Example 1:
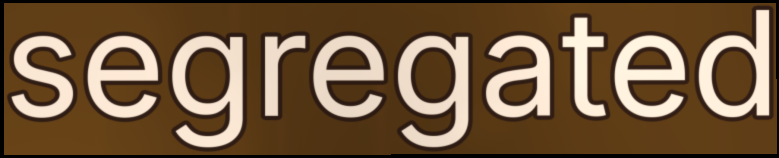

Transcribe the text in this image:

segregated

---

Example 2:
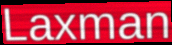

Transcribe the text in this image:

Laxman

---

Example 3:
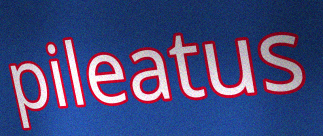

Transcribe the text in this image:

pileatus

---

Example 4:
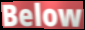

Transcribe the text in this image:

Below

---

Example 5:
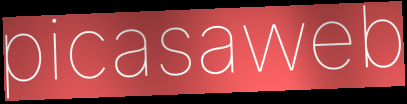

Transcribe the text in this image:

picasaweb